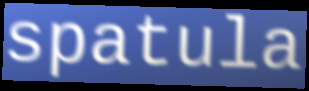
spatula